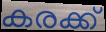
കരക്ക്